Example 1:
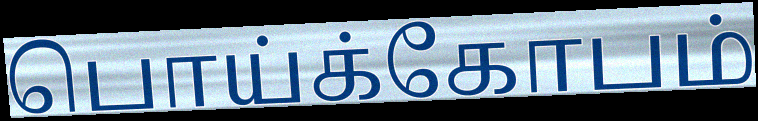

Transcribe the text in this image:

பொய்க்கோபம்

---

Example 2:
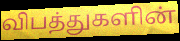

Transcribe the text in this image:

விபத்துகளின்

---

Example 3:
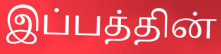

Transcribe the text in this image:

இப்பத்தின்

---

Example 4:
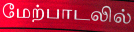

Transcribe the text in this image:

மேற்பாடலில்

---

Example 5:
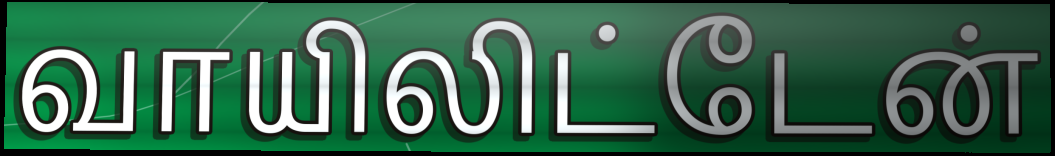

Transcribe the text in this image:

வாயிலிட்டேன்